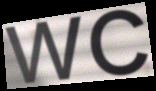
wc